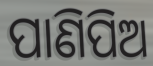
ପାଣିପିଅ